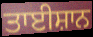
ਤਾਈਸ਼ਾਨ